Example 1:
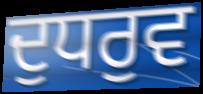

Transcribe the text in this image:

ਦੁਧਰੁਵ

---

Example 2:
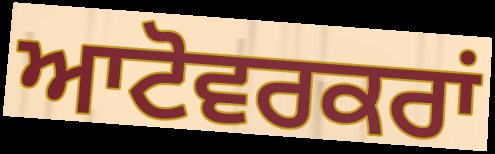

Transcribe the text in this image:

ਆਟੋਵਰਕਰਾਂ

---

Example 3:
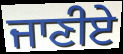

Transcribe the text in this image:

ਜਾਣੀਏ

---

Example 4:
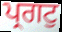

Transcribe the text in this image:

ਪ੍ਰਗਟੁ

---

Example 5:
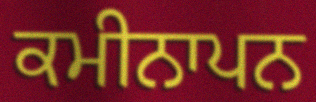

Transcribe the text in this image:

ਕਮੀਨਾਪਨ